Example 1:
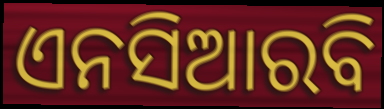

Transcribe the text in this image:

ଏନସିଆରବି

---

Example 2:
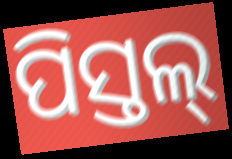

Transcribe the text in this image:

ପିସ୍ତଲ୍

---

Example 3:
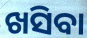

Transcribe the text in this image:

ଖସିବା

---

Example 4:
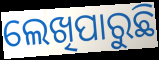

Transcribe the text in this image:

ଲେଖିପାରୁଛି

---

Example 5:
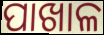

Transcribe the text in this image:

ପାଖାଳ